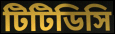
টিটিডিসি